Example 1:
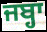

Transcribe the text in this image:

ਜਬ੍ਹਾ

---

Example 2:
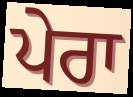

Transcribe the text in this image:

ਪੇਰਾ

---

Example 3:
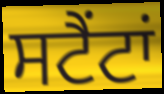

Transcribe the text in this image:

ਸਟੈਂਟਾਂ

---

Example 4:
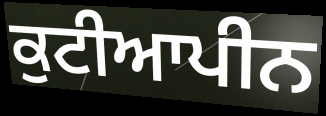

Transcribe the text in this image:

ਕੁਟੀਆਪੀਨ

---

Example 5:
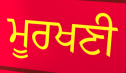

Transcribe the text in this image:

ਮੂਰਖਣੀ